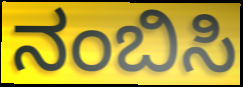
ನಂಬಿಸಿ